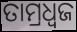
ତାମ୍ରଧ୍ୱଜ